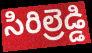
సిరిల్రెడ్డి